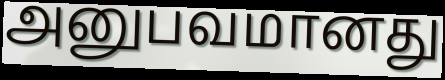
அனுபவமானது